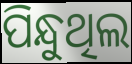
ପିନ୍ଧୁଥିଲ